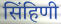
सिंहिणी